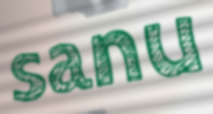
sanu